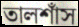
তালশাঁস